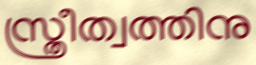
സ്ത്രീത്വത്തിനു